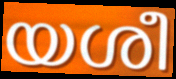
യശീ